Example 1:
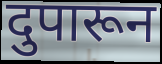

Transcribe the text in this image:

दुपारून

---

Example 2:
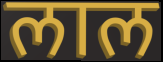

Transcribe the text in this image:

लाल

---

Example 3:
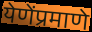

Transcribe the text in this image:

येणेंप्रमाणे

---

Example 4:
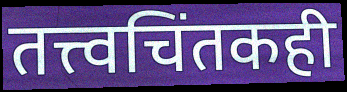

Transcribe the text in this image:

तत्त्वचिंतकही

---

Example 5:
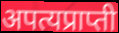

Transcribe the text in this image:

अपत्यप्राप्ती